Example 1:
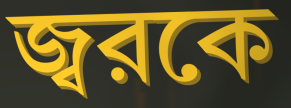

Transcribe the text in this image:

জ্বরকে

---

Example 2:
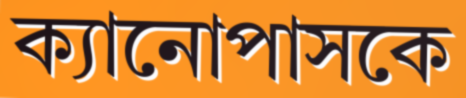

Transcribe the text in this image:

ক্যানোপাসকে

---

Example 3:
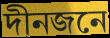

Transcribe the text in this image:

দীনজনে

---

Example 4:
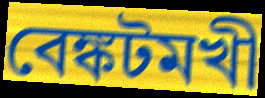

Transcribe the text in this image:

বেঙ্কটমখী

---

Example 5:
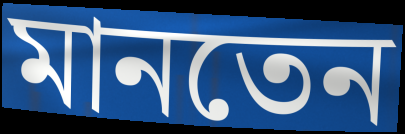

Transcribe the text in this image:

মানতেন